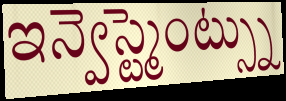
ఇన్వెస్ట్మెంట్స్ను